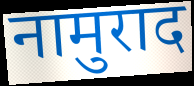
नामुराद